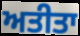
ਅਤੀਤਾ